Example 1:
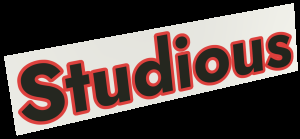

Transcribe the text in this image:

Studious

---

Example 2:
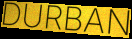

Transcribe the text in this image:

DURBAN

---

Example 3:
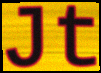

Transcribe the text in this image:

Jt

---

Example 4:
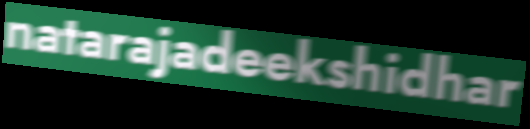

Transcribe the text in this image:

natarajadeekshidhar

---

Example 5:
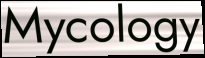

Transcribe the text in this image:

Mycology